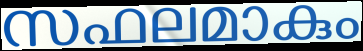
സഫലമാകും